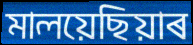
মালয়েছিয়াৰ